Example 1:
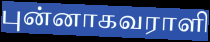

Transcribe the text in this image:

புன்னாகவராளி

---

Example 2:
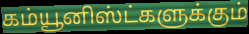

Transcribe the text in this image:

கம்யூனிஸ்ட்களுக்கும்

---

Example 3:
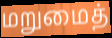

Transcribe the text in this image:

மறுமைத்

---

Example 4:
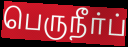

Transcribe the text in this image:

பெருநீர்ப்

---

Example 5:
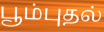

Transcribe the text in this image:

பூம்புதல்